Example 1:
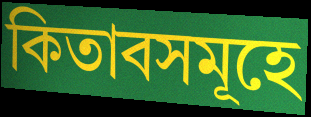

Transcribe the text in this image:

কিতাবসমূহে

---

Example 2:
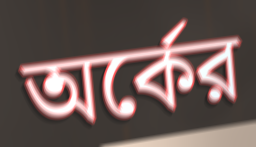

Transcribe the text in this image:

অর্কের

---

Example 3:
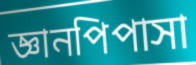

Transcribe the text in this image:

জ্ঞানপিপাসা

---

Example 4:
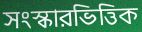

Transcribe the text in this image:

সংস্কারভিত্তিক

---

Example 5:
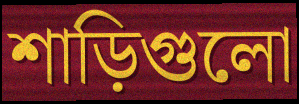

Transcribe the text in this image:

শাড়িগুলো